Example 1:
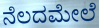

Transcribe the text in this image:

ನೆಲದಮೇಲೆ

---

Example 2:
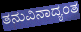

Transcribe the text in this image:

ತನುವಿನಾದ್ಯಂತ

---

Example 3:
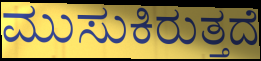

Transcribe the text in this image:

ಮುಸುಕಿರುತ್ತದೆ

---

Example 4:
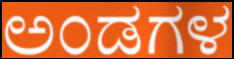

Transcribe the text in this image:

ಅಂಡಗಳ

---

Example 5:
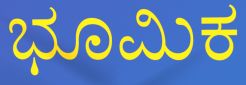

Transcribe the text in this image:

ಭೂಮಿಕ